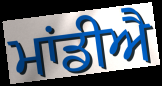
ਮਾਂਡੀਐ